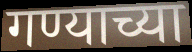
गण्याच्या